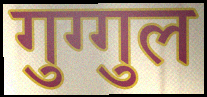
गुग्गुल